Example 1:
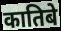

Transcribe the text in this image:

कातिबे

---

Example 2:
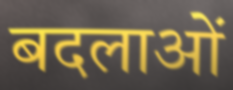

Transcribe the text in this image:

बदलाओं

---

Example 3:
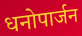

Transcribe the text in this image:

धनोपार्जन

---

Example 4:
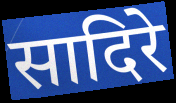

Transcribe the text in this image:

सादिरे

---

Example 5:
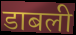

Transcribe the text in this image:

डाबली